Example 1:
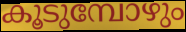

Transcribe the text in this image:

കൂടുമ്പോഴും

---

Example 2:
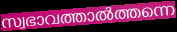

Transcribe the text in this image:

സ്വഭാവത്താൽത്തന്നെ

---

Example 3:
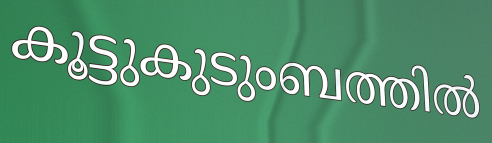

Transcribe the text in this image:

കൂട്ടുകുടുംബത്തിൽ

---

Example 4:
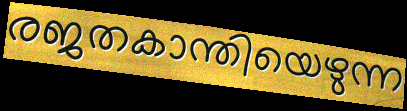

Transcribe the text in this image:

രജതകാന്തിയെഴുന്ന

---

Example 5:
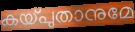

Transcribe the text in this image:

കയ്പുതാനുമേ